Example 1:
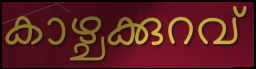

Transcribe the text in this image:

കാഴ്ചക്കുറവ്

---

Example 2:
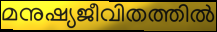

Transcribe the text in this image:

മനുഷ്യജീവിതത്തിൽ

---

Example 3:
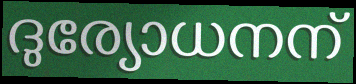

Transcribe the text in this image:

ദുര്യോധനന്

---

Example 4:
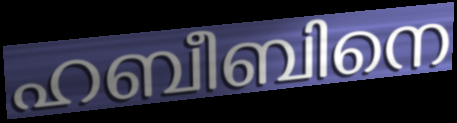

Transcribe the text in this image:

ഹബീബിനെ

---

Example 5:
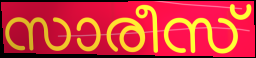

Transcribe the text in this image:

സാരീസ്